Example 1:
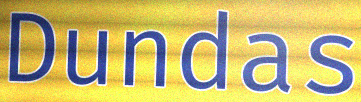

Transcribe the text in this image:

Dundas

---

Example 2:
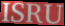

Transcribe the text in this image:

ISRU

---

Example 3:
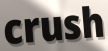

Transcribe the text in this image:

crush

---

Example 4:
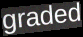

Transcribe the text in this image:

graded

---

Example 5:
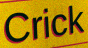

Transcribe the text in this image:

Crick